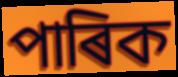
পাৰিক